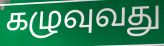
கழுவுவது